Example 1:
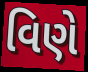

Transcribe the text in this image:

વિણે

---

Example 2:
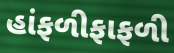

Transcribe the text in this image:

હાંફળીફાફળી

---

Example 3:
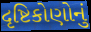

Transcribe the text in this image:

દૃષ્ટિકોણોનું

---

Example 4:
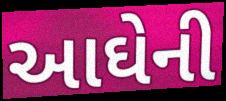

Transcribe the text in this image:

આઘેની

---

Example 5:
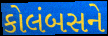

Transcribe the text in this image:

કોલંબસને